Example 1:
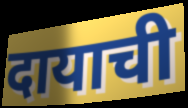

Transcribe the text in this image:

दायाची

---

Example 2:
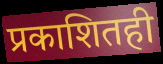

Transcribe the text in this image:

प्रकाशितही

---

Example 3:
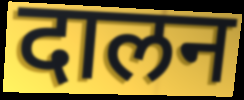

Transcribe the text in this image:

दालन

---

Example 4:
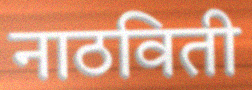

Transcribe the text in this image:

नाठविती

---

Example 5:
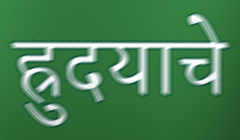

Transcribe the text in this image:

ह्रुदयाचे